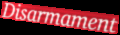
Disarmament